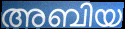
അബിയ